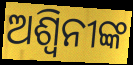
ଅଶ୍ୱିନୀଙ୍କ